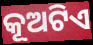
କୂଅଟିଏ